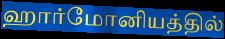
ஹார்மோனியத்தில்